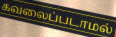
கவலைப்படாமல்